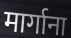
मार्गाना